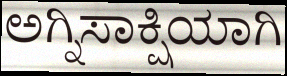
ಅಗ್ನಿಸಾಕ್ಷಿಯಾಗಿ